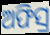
ଅଫିସ୍ର